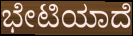
ಭೇಟಿಯಾದೆ